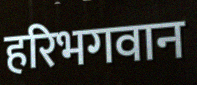
हरिभगवान